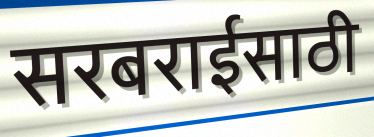
सरबराईसाठी